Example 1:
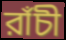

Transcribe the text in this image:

রাঁচী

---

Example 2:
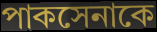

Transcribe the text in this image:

পাকসেনাকে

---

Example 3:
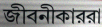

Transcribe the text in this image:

জীবনীকাররা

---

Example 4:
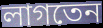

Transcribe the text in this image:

লাগতেন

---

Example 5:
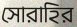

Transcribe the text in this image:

সোরাহির